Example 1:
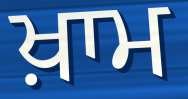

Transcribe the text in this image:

ਖ਼ਾਮ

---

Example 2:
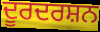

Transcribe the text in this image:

ਦੂਰਦਰਸ਼ਨ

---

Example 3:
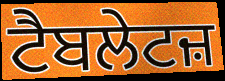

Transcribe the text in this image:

ਟੈਬਲੇਟਜ਼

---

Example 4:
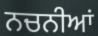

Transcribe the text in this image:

ਨਚਨੀਆਂ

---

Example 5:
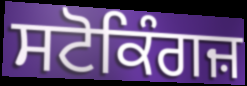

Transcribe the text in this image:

ਸਟੋਕਿੰਗਜ਼